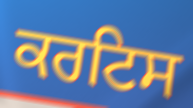
ਕਰਟਿਸ